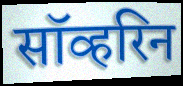
सॉव्हरिन